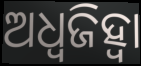
ଅଧ୍ୱଜିହ୍ବା